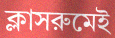
ক্লাসরুমেই